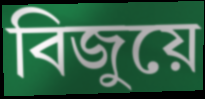
বিজুয়ে